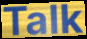
Talk